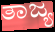
ತಾಜ್ಯ